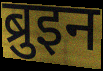
ब्रुइन